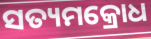
ସତ୍ୟମକ୍ରୋଧ